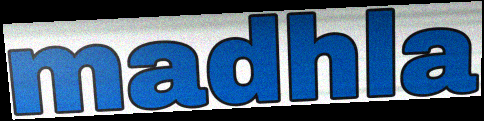
madhla